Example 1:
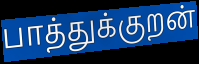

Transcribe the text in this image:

பாத்துக்குறன்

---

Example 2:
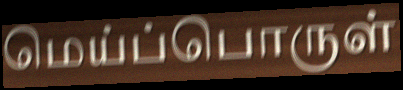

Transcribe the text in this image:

மெய்ப்பொருள்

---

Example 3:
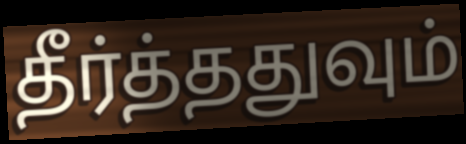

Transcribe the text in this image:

தீர்த்ததுவும்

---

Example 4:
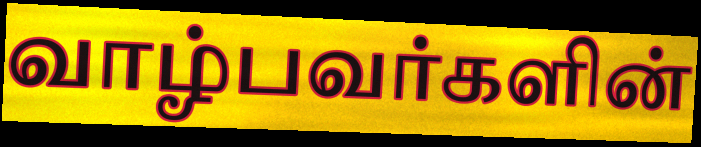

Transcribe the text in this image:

வாழ்பவர்களின்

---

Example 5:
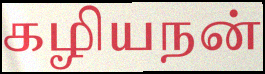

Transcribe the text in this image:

கழியநன்